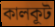
কালকূট